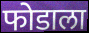
फोडाला